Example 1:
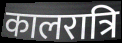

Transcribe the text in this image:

कालरात्रि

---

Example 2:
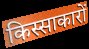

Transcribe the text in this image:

किस्साकारों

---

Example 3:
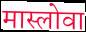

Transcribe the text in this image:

मास्लोवा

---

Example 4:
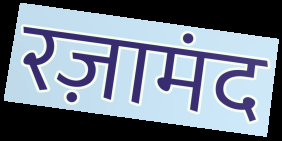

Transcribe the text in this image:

रज़ामंद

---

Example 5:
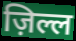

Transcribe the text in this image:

ज़िल्ल